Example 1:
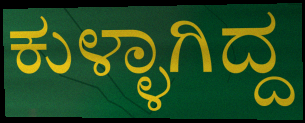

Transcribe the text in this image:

ಕುಳ್ಳಾಗಿದ್ದ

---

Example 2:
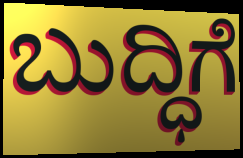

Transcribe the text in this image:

ಬುದ್ಧಿಗೆ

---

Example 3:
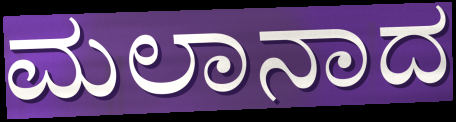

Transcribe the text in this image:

ಮಲಾನಾದ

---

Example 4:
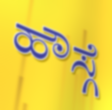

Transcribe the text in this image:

ಹೌಸ್ಗೆ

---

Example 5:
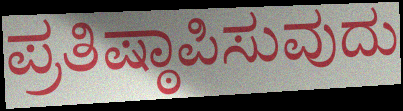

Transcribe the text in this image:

ಪ್ರತಿಷ್ಠಾಪಿಸುವುದು